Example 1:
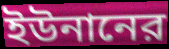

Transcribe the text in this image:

ইউনানের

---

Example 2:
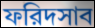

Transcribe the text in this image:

ফরিদসাব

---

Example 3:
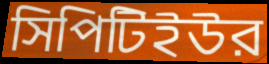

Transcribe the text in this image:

সিপিটিইউর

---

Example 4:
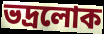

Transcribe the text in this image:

ভদ্রলোক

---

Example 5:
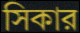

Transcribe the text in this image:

সিকার